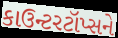
કાઉન્ટરટૉપ્સને